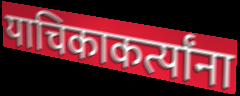
याचिकाकर्त्यांना